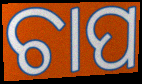
ଚାପ